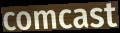
comcast